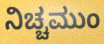
ನಿಚ್ಚಮುಂ